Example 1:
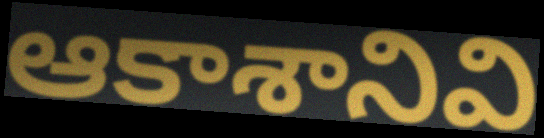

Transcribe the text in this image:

ఆకాశానివి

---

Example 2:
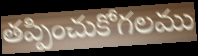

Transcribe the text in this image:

తప్పించుకోగలము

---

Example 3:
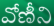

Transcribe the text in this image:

వోణీని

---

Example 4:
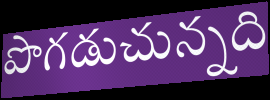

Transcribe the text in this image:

పొగడుచున్నది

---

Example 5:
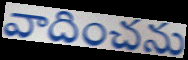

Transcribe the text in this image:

వాదించను